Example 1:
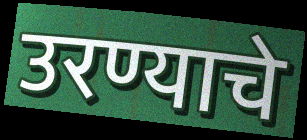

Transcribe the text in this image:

उरण्याचे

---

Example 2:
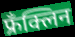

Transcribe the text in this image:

फ्रँक्लिन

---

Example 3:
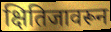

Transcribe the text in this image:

क्षितिजावरून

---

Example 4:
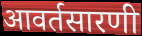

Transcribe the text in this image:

आवर्तसारणी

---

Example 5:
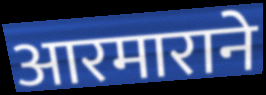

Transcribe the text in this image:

आरमाराने